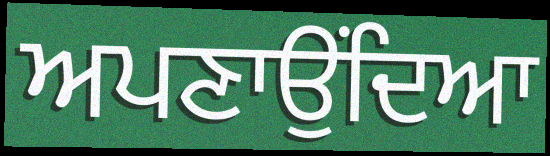
ਅਪਣਾਉਂਦਿਆ